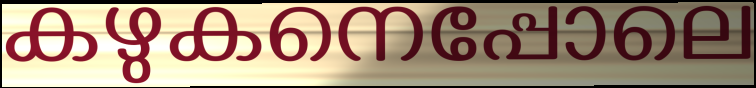
കഴുകനെപ്പോലെ